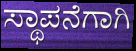
ಸ್ಥಾಪನೆಗಾಗಿ